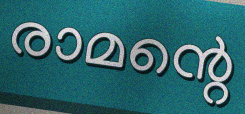
രാമന്റെ